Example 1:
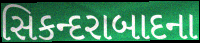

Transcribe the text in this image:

સિકન્દરાબાદના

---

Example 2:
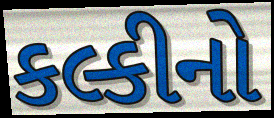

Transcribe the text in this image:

કલ્કીનો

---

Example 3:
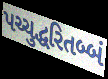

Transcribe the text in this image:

પચ્ચુદ્ધરિતબ્બં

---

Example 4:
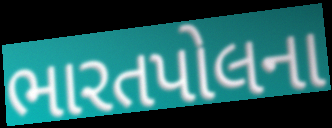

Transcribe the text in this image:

ભારતપોલના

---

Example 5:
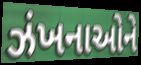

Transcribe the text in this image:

ઝંખનાઓને